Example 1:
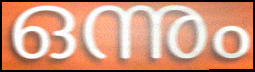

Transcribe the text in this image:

ഒന്നും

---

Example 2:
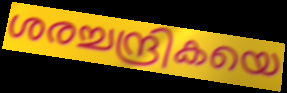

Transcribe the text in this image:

ശരച്ചന്ദ്രികയെ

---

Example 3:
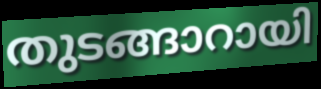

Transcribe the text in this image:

തുടങ്ങാറായി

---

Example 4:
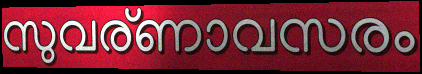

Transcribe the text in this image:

സുവര്ണാവസരം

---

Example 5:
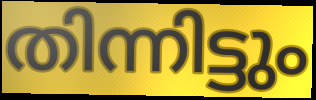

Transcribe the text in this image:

തിന്നിട്ടും